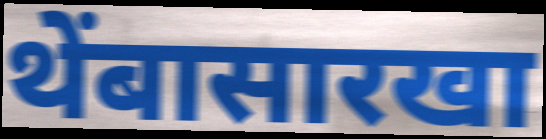
थेंबासारखा